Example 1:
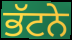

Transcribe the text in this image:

ਭੱਟਨੇ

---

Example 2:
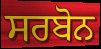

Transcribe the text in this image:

ਸਰਬੋਨ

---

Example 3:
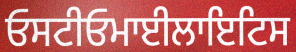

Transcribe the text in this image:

ਓਸਟੀਓਮਾਈਲਾਇਟਿਸ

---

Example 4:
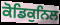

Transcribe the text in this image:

ਕੋਡਿਕੁਨਿਲ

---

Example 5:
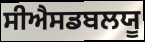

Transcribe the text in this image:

ਸੀਐਸਡਬਲਯੂ